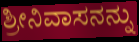
ಶ್ರೀನಿವಾಸನನ್ನು